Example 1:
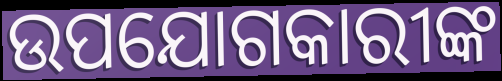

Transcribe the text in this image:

ଉପଯୋଗକାରୀଙ୍କ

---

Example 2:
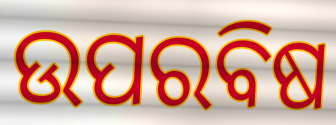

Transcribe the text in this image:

ଉପରବିଷ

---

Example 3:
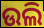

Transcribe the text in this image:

ଉଲି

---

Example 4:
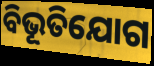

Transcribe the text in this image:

ବିଭୂତିଯୋଗ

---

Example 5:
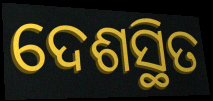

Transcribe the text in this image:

ଦେଶସ୍ଥିତ